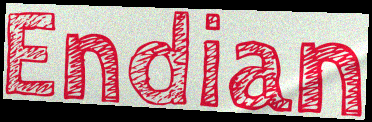
Endian